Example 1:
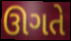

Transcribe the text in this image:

ઊગતે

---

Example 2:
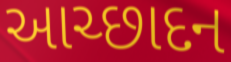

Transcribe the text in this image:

આચ્છાદન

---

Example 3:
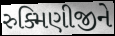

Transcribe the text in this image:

રુક્મિણીજીને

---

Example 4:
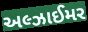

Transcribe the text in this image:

અલ્ઝાઈમર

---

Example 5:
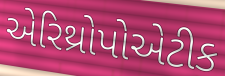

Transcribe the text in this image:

એરિથ્રોપોએટીક